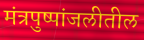
मंत्रपुष्पांजलीतील